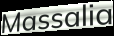
Massalia